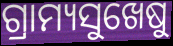
ଗ୍ରାମ୍ୟସୁଖେଷୁ